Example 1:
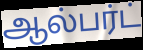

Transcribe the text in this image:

ஆல்பர்ட்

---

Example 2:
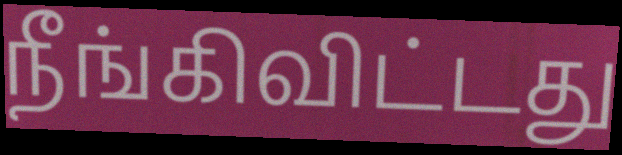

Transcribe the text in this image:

நீங்கிவிட்டது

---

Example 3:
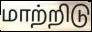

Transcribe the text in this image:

மாற்றிடு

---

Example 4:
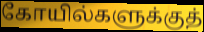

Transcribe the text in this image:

கோயில்களுக்குத்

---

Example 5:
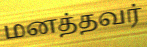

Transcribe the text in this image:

மனத்தவர்